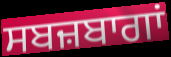
ਸਬਜ਼ਬਾਗਾਂ